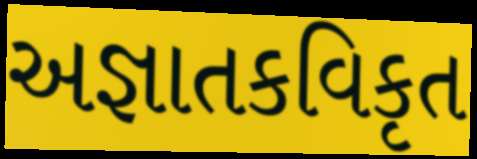
અજ્ઞાતકવિકૃત